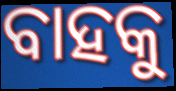
ବାହକୁ